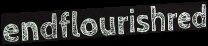
endflourishred